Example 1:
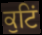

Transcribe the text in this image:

ਕੁਟਿਂ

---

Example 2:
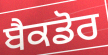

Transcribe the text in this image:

ਬੈਕਡੋਰ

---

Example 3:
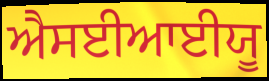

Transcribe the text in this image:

ਐਸਈਆਈਯੂ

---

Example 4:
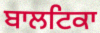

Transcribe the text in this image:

ਬਾਲਟਿਕਾ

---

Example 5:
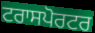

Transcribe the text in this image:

ਟਰਾਸਪੋਰਟਰ